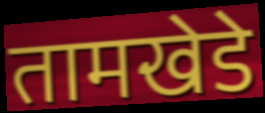
तामखेडे